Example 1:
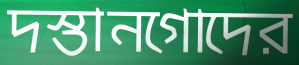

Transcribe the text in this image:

দস্তানগোদের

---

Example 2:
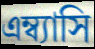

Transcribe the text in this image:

এম্ব্যাসি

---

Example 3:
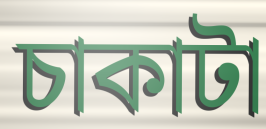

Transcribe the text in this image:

চাকাটা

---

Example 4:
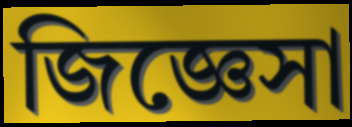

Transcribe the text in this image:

জিজ্ঞেসা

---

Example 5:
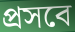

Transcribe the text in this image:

প্রসবে